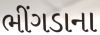
ભીંગડાના